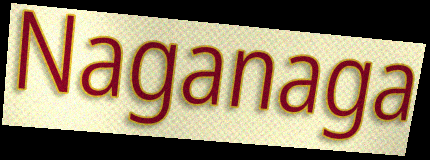
Naganaga